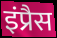
इंप्रैस